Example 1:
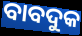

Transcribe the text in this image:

ବାବଦୁକ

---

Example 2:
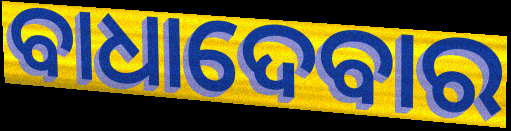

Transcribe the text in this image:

ବାଧାଦେବାର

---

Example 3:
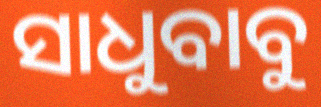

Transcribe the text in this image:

ସାଧୁବାବୁ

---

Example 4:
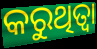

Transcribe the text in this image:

କରୁଥିତ୍ବା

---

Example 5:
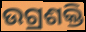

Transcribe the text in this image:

ଉଗ୍ରଶକ୍ତି